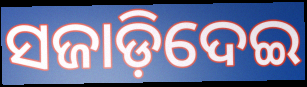
ସଜାଡ଼ିଦେଇ